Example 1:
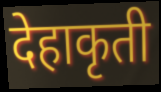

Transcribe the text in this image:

देहाकृती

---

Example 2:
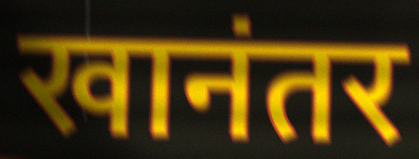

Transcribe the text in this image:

खानंतर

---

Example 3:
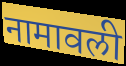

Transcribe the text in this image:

नामावली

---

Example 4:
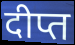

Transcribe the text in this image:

दीप्त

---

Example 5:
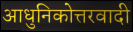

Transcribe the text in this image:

आधुनिकोत्तरवादी